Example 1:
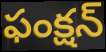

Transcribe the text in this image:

ఫంక్షన్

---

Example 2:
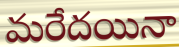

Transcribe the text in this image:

మరేదయినా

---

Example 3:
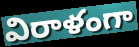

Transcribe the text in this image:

విరాళంగా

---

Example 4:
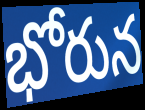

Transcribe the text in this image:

భోరున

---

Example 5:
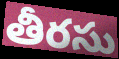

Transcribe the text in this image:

తీరసు